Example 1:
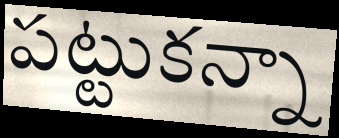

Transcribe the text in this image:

పట్టుకన్నా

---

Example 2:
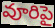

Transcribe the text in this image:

వూరిపై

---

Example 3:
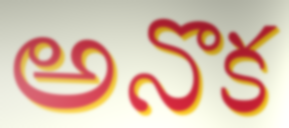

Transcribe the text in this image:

అనొక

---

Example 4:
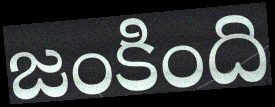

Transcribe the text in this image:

జంకింది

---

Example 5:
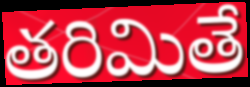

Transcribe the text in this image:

తరిమితే